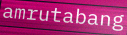
amrutabang